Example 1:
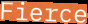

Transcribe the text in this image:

Fierce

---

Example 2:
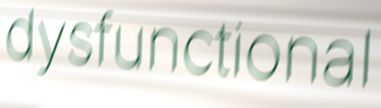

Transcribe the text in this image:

dysfunctional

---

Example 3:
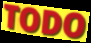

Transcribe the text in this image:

TODO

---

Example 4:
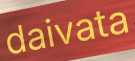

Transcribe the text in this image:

daivata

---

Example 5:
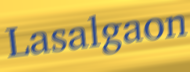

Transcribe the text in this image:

Lasalgaon